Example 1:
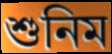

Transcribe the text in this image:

শুনিম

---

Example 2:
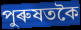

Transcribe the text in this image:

পুৰুষতকৈ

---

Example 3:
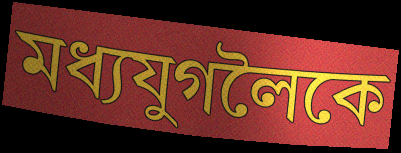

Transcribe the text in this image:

মধ্যযুগলৈকে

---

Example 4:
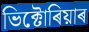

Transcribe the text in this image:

ভিক্টোৰিয়াৰ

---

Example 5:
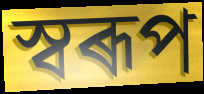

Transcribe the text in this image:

স্বৰূপ